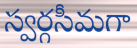
స్వర్గసీమగా